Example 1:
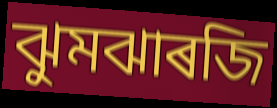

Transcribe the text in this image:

ঝুমঝাৰজি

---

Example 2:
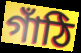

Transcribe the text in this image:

গাঁঠি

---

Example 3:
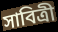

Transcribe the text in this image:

সাবিত্ৰী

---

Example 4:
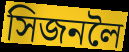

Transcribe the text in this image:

সিজনলৈ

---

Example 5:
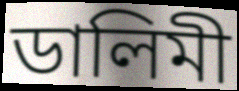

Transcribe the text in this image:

ডালিমী